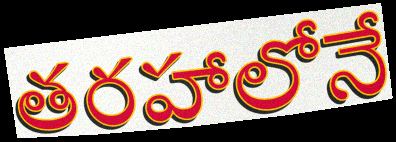
తరహాలోనే